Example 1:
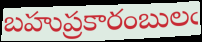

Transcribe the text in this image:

బహుప్రకారంబులఁ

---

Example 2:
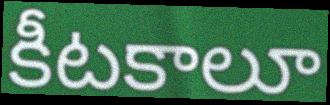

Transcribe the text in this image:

కీటకాలూ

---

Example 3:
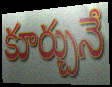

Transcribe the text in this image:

కూర్చునే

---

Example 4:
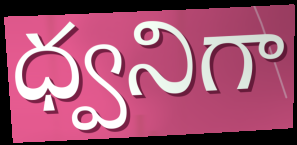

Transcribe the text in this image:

ధ్వనిగా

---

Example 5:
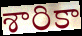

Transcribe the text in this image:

శారికా